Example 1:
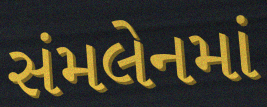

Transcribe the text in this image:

સંમલેનમાં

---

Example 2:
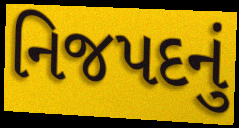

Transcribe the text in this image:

નિજપદનું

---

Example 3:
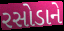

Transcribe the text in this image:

રસોડાને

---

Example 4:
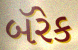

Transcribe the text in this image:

બૅરેક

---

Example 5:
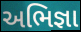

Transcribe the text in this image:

અભિજ્ઞા